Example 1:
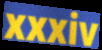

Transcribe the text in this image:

xxxiv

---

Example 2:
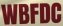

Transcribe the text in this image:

WBFDC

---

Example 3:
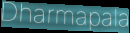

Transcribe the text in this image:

Dharmapala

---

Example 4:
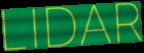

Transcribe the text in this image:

LIDAR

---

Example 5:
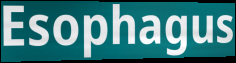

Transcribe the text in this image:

Esophagus